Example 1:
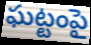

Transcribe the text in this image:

ఘట్టంపై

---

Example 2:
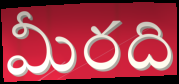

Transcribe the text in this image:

మీరది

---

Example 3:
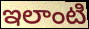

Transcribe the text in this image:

ఇలాంటి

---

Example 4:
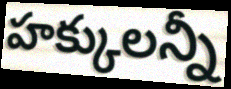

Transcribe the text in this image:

హక్కులన్నీ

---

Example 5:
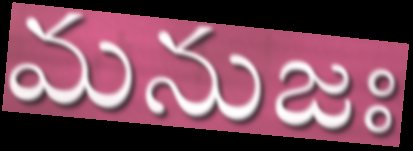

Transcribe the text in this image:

మనుజః